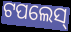
ଟପଲେସ୍